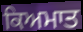
ਕਿਅਮਾਤ